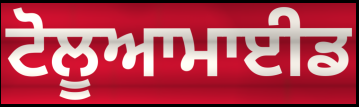
ਟੋਲੂਆਮਾਈਡ